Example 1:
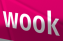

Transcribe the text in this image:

wook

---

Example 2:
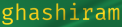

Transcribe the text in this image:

ghashiram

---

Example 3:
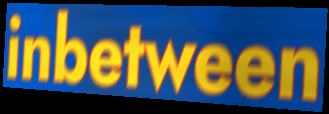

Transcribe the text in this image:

inbetween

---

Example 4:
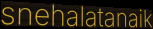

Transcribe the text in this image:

snehalatanaik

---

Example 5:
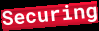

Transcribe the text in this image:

Securing